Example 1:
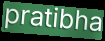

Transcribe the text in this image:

pratibha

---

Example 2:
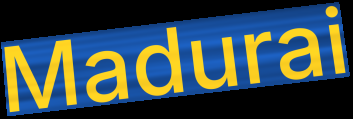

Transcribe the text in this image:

Madurai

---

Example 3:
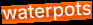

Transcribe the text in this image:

waterpots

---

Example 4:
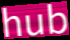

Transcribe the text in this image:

hub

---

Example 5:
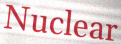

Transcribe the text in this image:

Nuclear